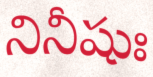
నినీషుః